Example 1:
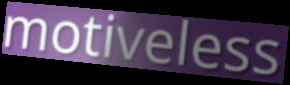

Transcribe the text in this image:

motiveless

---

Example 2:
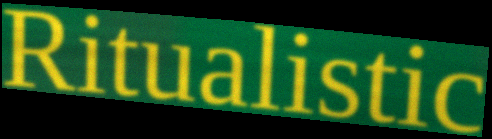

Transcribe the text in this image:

Ritualistic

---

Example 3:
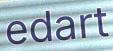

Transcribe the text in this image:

edart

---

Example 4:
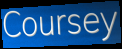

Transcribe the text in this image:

Coursey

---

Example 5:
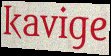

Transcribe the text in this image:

kavige